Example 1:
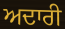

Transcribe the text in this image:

ਅਦਾਰੀ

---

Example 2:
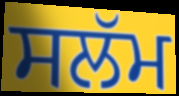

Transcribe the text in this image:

ਸਲੱਮ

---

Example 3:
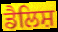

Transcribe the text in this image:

ਡੈਲਿਸ਼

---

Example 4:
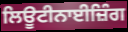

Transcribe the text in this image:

ਲਿਊਟੀਨਾਈਜ਼ਿੰਗ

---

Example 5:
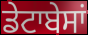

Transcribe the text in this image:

ਡੇਟਾਬੇਸਾਂ